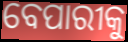
ବେପାରୀକୁ